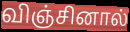
விஞ்சினால்